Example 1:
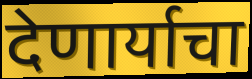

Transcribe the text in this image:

देणार्याचा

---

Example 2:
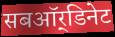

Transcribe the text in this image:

सबऑर्डिनेट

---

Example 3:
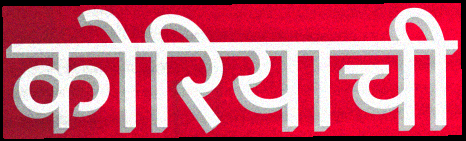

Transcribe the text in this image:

कोरियाची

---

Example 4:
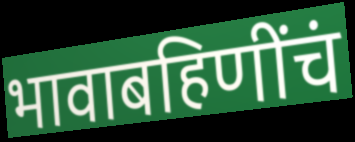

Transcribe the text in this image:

भावाबहिणींचं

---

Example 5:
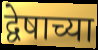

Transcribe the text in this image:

द्वेषाच्या